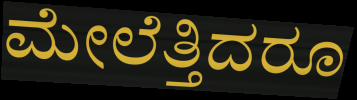
ಮೇಲೆತ್ತಿದರೂ